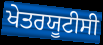
ਖੇਤਰਯੂਟੀਸੀ